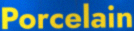
Porcelain